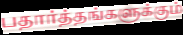
பதார்த்தங்களுக்கும்